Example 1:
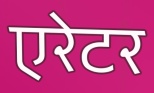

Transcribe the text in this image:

एरेटर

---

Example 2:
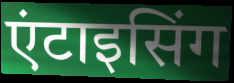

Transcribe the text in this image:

एंटाइसिंग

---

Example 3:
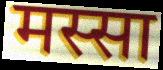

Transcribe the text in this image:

मस्‍सा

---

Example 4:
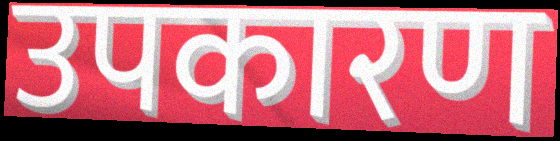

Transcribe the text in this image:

उपकारण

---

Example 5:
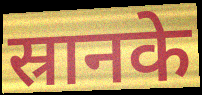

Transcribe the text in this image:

स्रानके